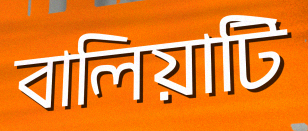
বালিয়াটি